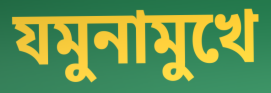
যমুনামুখে